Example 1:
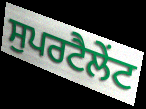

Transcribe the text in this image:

ਸੁਪਰਟੈਲੇਂਟ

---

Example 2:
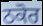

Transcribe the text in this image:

ਠਕੋਰ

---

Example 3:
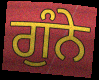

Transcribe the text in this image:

ਗੁੰਨੇ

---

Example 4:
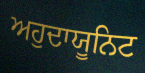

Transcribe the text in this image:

ਅਹੁਦਾਯੂਨਿਟ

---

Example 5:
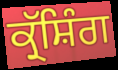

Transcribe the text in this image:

ਕ੍ਰੱਸ਼ਿੰਗ